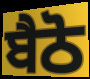
ਬੈਠੋ